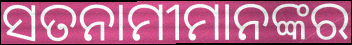
ସତନାମୀମାନଙ୍କର